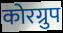
कोरग्रुप